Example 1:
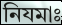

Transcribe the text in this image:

নিযমাঃ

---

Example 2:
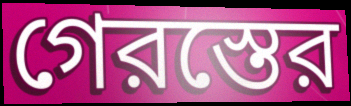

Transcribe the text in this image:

গেরস্তের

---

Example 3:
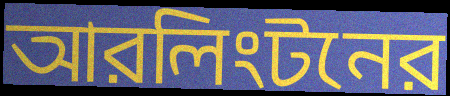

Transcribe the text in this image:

আরলিংটনের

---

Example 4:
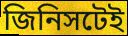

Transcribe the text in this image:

জিনিসটেই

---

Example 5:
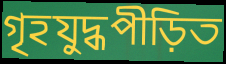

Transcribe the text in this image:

গৃহযুদ্ধপীড়িত